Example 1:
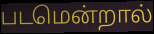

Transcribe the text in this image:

படமென்றால்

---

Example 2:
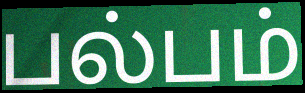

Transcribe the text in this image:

பல்பம்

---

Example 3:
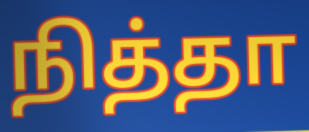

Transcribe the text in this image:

நித்தா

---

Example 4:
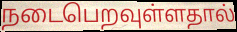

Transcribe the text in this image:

நடைபெறவுள்ளதால்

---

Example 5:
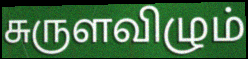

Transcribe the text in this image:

சுருளவிழும்